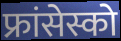
फ्रांसेस्को